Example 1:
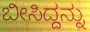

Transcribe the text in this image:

ಬೀಸಿದ್ದನ್ನು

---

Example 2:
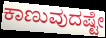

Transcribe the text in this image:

ಕಾಣುವುದಷ್ಟೇ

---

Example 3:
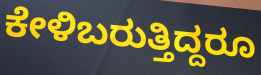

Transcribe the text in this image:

ಕೇಳಿಬರುತ್ತಿದ್ದರೂ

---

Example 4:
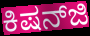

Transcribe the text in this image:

ಕಿಷನ್‌ಜಿ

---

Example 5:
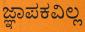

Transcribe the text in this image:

ಜ್ಞಾಪಕವಿಲ್ಲ